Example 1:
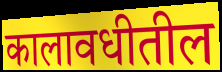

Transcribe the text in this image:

कालावधीतील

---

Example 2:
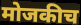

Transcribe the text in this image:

मोजकीच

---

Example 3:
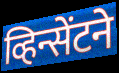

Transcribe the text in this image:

व्हिन्सेंटने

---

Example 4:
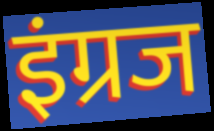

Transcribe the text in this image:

इंग्रज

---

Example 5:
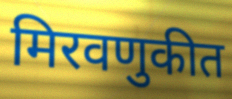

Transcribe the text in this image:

मिरवणुकीत